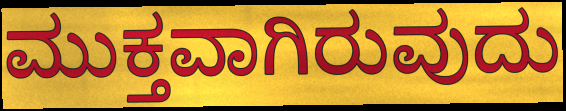
ಮುಕ್ತವಾಗಿರುವುದು